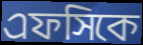
এফসিকে